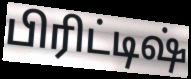
பிரிட்டிஷ்